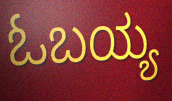
ಓಬಯ್ಯ